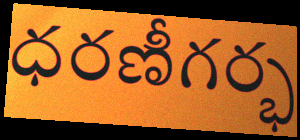
ధరణీగర్భ